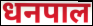
धनपाल